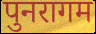
पुनरागम